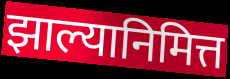
झाल्यानिमित्त